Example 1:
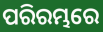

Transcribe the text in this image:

ପରିରମ୍ଭରେ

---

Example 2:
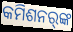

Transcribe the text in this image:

କମିଶନର୍‌ଙ୍କ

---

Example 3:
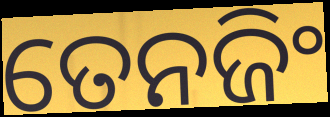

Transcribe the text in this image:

ତେନଜିଂ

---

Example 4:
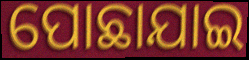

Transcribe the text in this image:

ପୋଛାଯାଇ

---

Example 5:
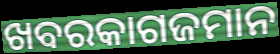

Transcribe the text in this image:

ଖବରକାଗଜମାନ